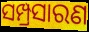
ସମ୍ପ୍ରସାରଣ